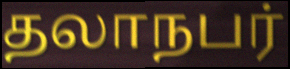
தலாநபர்